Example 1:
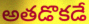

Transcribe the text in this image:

అతడొకడే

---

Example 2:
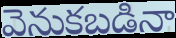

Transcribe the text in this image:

వెనుకబడినా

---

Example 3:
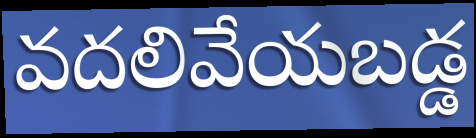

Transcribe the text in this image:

వదలివేయబడ్డ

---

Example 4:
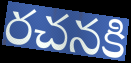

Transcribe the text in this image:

రచనకి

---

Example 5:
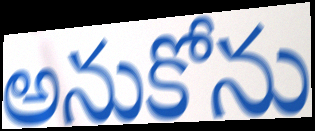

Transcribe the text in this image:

అనుకోను